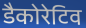
डैकोरेटिव